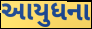
આયુધના